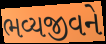
ભવ્યજીવને